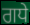
ਗਧੇ